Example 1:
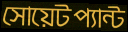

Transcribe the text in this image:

সোয়েটপ্যান্ট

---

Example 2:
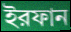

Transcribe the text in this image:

ইরফান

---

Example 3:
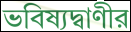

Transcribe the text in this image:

ভবিষ্যদ্বাণীর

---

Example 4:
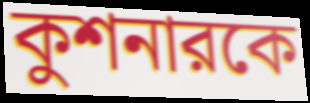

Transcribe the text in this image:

কুশনারকে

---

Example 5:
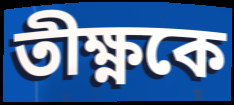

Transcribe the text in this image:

তীক্ষ্ণকে